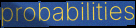
probabilities